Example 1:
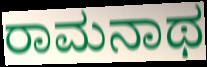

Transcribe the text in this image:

ರಾಮನಾಥ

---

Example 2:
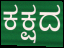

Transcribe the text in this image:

ಕಕ್ಷದ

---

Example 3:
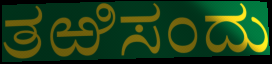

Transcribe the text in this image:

ತಱಿಸಂದು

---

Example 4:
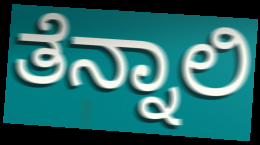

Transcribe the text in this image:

ತೆನ್ನಾಲಿ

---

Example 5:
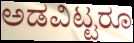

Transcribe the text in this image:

ಅಡವಿಟ್ಟರೂ